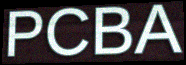
PCBA